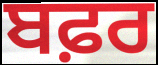
ਬਫ਼ਰ